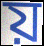
য়